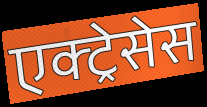
एक्ट्रेसेस